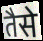
तैसे